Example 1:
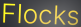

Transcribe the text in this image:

Flocks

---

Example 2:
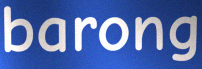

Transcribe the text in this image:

barong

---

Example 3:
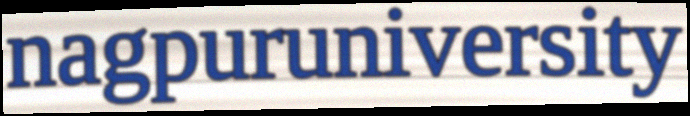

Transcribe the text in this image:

nagpuruniversity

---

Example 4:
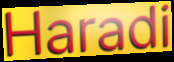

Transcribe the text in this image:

Haradi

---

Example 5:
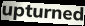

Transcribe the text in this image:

upturned